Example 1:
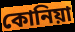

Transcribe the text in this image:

কোনিয়া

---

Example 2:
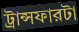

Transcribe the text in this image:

ট্রান্সফারটা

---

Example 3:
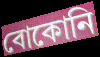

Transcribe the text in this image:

বোকোনি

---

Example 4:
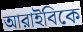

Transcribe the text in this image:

আরাইবিকে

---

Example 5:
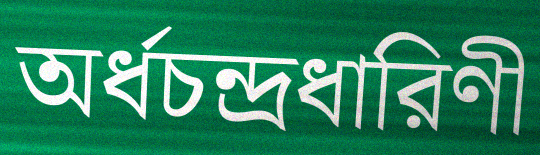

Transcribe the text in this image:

অর্ধচন্দ্রধারিণী